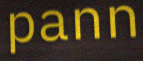
pann